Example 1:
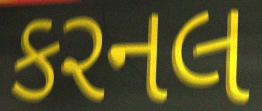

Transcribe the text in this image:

કરનલ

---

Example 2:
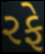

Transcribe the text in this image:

રફે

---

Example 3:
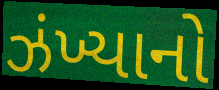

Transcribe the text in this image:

ઝંખ્યાનો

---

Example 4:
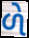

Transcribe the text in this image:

ળે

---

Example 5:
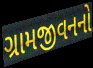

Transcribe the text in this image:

ગ્રામજીવનનો